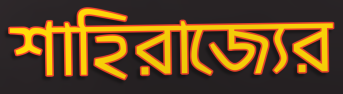
শাহিরাজ্যের